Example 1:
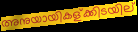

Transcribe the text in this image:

അനുയായികള്ക്കിടയില്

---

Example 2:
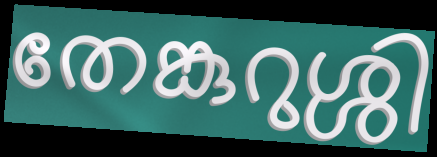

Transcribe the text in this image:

തേങ്കുറുശ്ശി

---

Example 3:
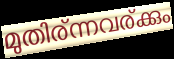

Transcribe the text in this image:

മുതിര്ന്നവര്ക്കും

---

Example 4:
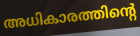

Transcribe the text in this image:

അധികാരത്തിന്റെ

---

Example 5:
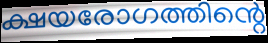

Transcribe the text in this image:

ക്ഷയരോഗത്തിന്റെ